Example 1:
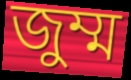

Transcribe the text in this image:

জুম্ম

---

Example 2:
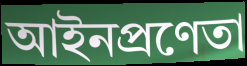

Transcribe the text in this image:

আইনপ্রণেতা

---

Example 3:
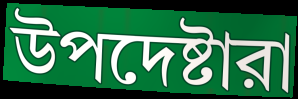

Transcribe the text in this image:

উপদেষ্টারা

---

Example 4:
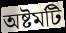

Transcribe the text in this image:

অষ্টমটি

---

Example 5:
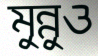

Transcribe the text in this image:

মুন্নুও